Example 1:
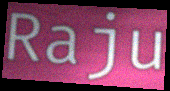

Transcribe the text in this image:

Raju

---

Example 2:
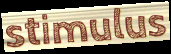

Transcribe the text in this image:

stimulus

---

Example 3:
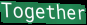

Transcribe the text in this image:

Together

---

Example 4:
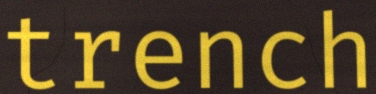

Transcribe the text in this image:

trench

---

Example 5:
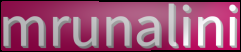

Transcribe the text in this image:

mrunalini